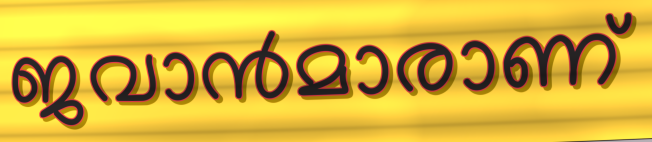
ജവാൻമാരാണ്